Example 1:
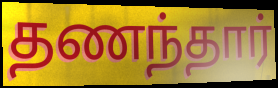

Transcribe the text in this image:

தணந்தார்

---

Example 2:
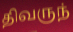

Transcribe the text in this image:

திவருந்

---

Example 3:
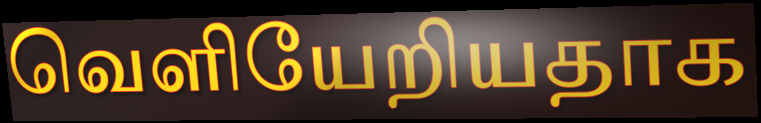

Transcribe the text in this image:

வெளியேறியதாக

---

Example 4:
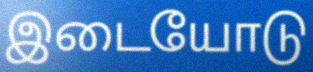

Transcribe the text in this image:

இடையோடு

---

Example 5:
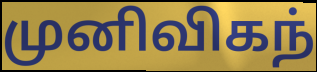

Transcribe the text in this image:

முனிவிகந்